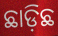
ଛାଡ଼ିଛ